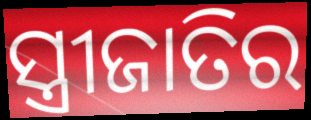
ସ୍ତ୍ରୀଜାତିର